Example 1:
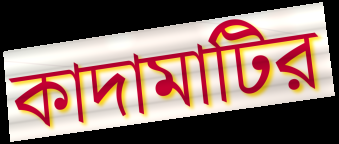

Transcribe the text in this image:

কাদামাটির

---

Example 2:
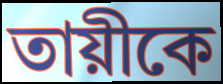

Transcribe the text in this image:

তায়ীকে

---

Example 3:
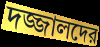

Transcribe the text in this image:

দজ্জালদের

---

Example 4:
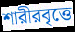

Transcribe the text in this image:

শারীরবৃত্তে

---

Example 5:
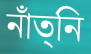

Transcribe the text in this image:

নাঁত্‌নি